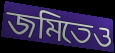
জমিতেও